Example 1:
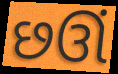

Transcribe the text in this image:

છઊં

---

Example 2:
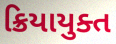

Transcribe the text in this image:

ક્રિયાયુક્ત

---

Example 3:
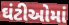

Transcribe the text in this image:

ઘંટીઓમાં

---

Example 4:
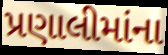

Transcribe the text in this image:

પ્રણાલીમાંના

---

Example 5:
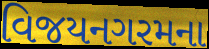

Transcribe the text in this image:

વિજયનગરમના